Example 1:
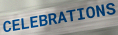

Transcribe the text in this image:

CELEBRATIONS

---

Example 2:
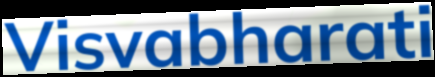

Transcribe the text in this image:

Visvabharati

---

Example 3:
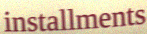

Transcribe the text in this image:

installments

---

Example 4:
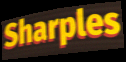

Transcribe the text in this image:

Sharples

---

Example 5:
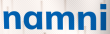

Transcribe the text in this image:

namni